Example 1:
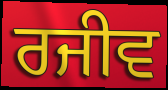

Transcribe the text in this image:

ਰਜੀਵ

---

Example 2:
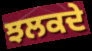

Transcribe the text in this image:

ਝਲਕਦੇ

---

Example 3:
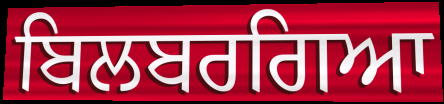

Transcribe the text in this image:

ਬਿਲਬਰਗਿਆ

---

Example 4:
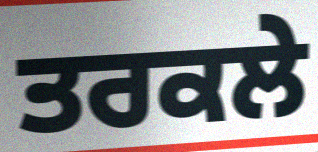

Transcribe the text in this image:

ਤਰਕਲੇ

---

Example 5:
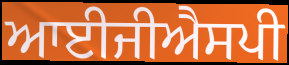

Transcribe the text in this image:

ਆਈਜੀਐਸਪੀ